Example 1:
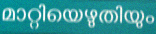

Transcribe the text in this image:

മാറ്റിയെഴുതിയും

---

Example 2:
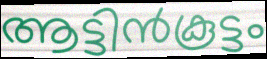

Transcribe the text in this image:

ആട്ടിൻകൂട്ടം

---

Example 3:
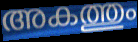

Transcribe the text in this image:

അകത്തും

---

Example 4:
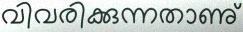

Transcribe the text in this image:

വിവരിക്കുന്നതാണു്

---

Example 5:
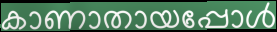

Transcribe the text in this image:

കാണാതായപ്പോൾ